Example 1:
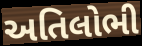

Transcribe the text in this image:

અતિલોભી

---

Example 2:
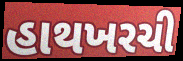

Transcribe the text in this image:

હાથખરચી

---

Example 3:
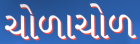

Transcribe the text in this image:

ચોળાચોળ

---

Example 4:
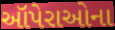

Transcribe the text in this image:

ઑપેરાઓના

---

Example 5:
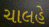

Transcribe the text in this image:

ચાલહે